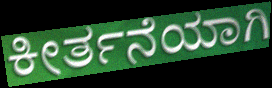
ಕೀರ್ತನೆಯಾಗಿ